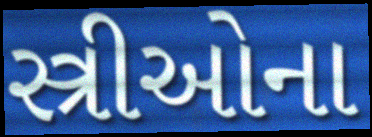
સ્ત્રીઓના